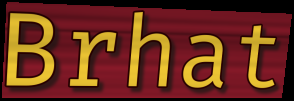
Brhat